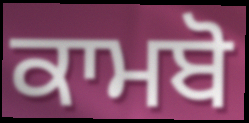
ਕਾਮਬੋ